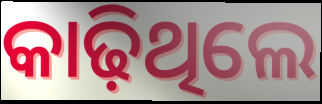
କାଢ଼ିଥିଲେ